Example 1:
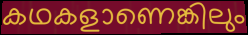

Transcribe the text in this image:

കഥകളാണെങ്കിലും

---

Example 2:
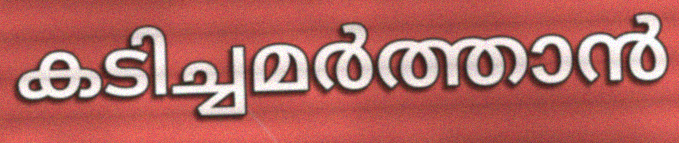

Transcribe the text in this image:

കടിച്ചമർത്താൻ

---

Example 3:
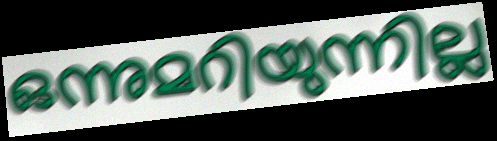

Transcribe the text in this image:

ഒന്നുമറിയുന്നില്ല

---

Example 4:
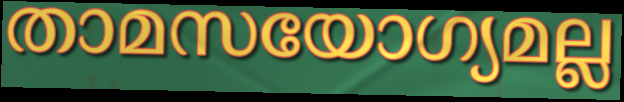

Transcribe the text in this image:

താമസയോഗ്യമല്ല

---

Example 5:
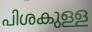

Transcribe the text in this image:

പിശകുള്ള